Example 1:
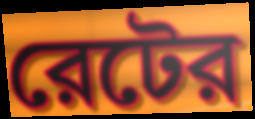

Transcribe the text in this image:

রেটের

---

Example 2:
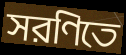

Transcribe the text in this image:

সরণিতে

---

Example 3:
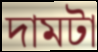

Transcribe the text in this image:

দামটা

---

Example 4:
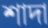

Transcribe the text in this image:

শাদা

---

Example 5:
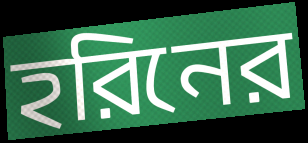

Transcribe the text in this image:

হরিনের